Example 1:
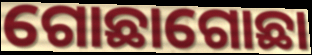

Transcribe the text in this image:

ଗୋଛାଗୋଛା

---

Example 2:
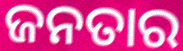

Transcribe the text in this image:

ଜନତାର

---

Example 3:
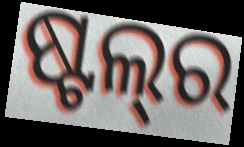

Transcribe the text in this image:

ଷ୍ଟଲ୍‌ର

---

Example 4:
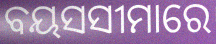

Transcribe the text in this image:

ବୟସସୀମାରେ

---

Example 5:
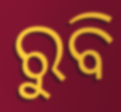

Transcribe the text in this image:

ରୁବି